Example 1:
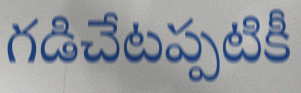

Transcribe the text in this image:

గడిచేటప్పటికీ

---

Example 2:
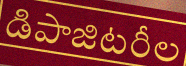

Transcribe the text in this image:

డిపాజిటరీల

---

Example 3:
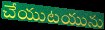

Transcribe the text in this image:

చేయుటయును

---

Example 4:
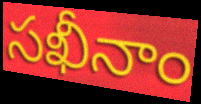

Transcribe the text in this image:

సఖీనాం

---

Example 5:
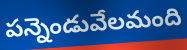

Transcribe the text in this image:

పన్నెండువేలమంది